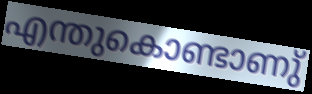
എന്തുകൊണ്ടാണു്